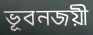
ভূবনজয়ী